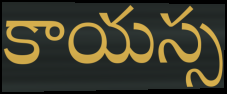
కాయస్స